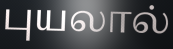
புயலால்